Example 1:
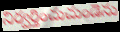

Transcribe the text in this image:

నిర్వర్తించుచుండెను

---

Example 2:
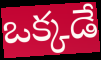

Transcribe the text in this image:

ఒక్కడే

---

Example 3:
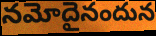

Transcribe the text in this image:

నమోదైనందున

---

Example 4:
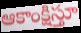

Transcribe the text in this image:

ఆకాంక్షిస్తూ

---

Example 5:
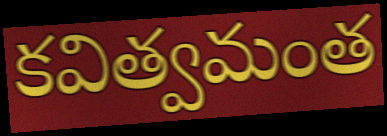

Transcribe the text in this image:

కవిత్వమంత